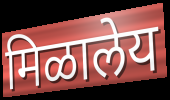
मिळालेय